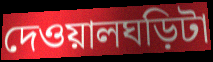
দেওয়ালঘড়িটা